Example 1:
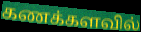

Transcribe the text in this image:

கணக்களவில்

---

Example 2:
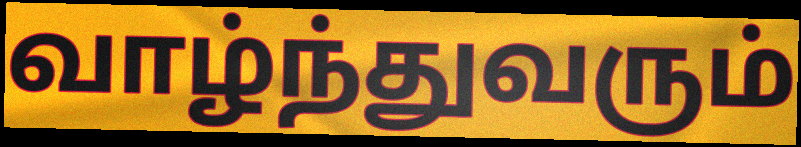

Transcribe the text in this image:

வாழ்ந்துவரும்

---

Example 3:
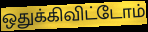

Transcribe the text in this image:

ஒதுக்கிவிட்டோம்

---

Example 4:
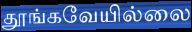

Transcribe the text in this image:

தூங்கவேயில்லை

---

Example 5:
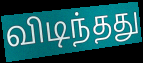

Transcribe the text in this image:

விடிந்தது